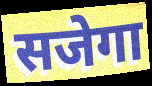
सजेगा